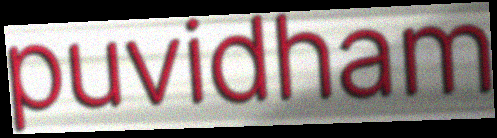
puvidham